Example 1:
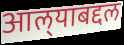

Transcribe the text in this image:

आल्याबद्दल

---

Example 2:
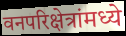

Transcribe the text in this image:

वनपरिक्षेत्रांमध्ये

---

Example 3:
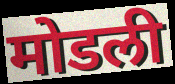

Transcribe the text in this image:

मोडली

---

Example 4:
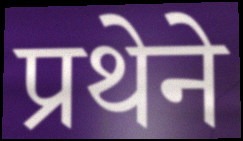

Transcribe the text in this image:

प्रथेने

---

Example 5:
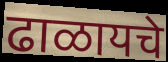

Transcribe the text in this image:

ढाळायचे